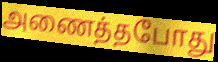
அணைத்தபோது